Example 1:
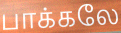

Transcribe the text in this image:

பாக்கலே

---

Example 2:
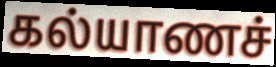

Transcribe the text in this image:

கல்யாணச்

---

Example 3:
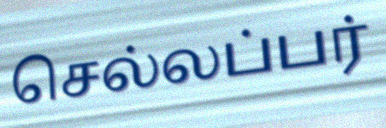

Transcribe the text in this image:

செல்லப்பர்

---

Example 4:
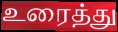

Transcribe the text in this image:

உரைத்து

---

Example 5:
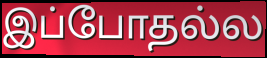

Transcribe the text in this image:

இப்போதல்ல